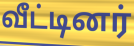
வீட்டினர்